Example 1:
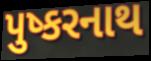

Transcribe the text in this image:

પુષ્કરનાથ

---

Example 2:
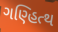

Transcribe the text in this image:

ગણ્હિત્થ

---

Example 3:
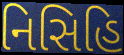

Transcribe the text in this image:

નિસિહિ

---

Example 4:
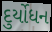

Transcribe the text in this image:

દુર્યોધન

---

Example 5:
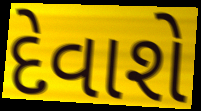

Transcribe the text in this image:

દેવાશે